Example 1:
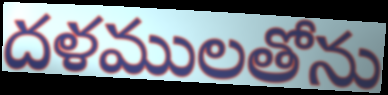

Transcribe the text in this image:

దళములతోను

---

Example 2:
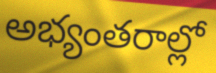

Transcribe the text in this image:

అభ్యంతరాల్లో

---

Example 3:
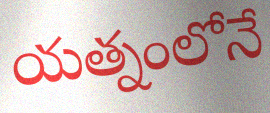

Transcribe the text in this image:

యత్నంలోనే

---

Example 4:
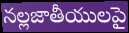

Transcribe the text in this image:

నల్లజాతీయులపై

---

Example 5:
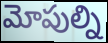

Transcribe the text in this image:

మోపుల్ని